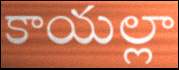
కాయల్లా